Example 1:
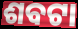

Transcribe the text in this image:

ଶବଟା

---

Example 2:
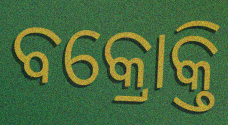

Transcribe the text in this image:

ବକ୍ରୋକ୍ତି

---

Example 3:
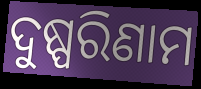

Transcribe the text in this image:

ଦୁଷ୍ପରିଣାମ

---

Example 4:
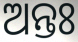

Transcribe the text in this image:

ଅନ୍ତଃ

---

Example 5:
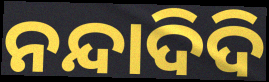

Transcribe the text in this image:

ନନ୍ଦାଦିଦି